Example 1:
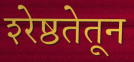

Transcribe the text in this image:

श्रेष्ठतेतून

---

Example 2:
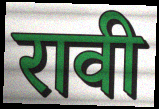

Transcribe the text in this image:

रावी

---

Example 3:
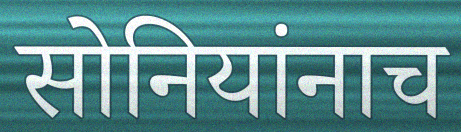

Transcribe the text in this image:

सोनियांनाच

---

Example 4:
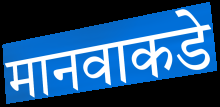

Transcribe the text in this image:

मानवाकडे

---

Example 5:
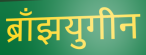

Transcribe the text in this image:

ब्राँझयुगीन